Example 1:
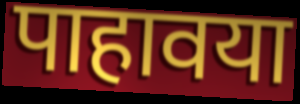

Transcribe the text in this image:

पाहावया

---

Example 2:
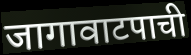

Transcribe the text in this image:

जागावाटपाची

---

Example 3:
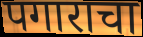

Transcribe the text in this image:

पगाराचा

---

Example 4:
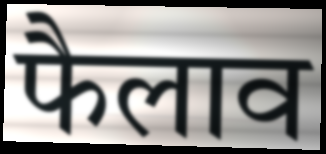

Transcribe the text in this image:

फैलाव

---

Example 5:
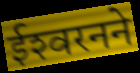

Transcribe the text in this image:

ईश्वरनने